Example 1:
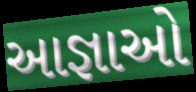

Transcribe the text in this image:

આજ્ઞાઓ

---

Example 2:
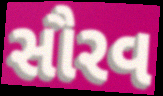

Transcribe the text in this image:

સૌરવ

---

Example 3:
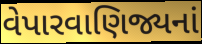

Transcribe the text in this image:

વેપારવાણિજ્યનાં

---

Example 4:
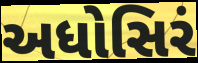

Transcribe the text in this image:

અધોસિરં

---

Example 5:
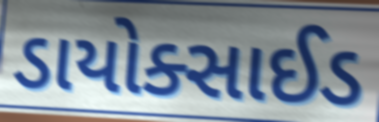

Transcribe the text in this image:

ડાયોક્સાઈડ